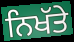
ਨਿਖੱਤੇ